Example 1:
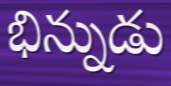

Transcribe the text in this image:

భిన్నుడు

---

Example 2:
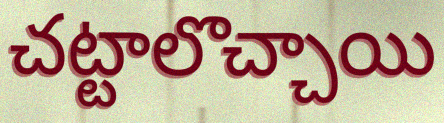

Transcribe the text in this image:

చట్టాలొచ్చాయి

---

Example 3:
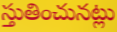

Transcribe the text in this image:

స్తుతించునట్లు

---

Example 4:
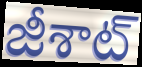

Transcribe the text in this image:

జీశాట్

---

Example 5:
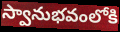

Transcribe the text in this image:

స్వానుభవంలోకి